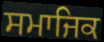
ਸਮਾਜਿਕ